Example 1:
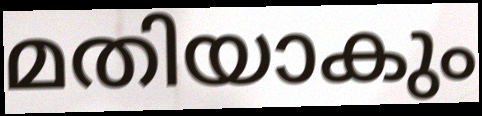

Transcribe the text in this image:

മതിയാകും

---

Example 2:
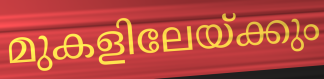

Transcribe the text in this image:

മുകളിലേയ്ക്കും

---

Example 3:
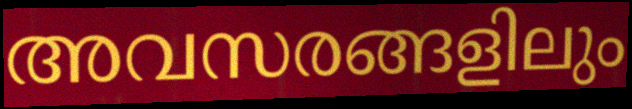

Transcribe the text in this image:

അവസരങ്ങളിലും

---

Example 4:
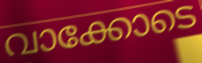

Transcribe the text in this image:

വാക്കോടെ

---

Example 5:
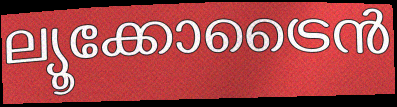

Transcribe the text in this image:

ല്യൂക്കോട്രൈൻ